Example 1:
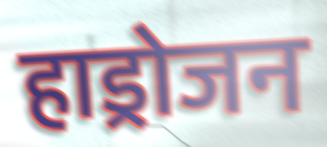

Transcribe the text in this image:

हाड्रोजन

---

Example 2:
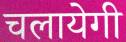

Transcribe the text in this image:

चलायेगी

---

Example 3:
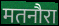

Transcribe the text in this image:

मतनौरा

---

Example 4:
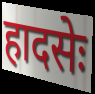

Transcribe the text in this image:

हादसेः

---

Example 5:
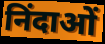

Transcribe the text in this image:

निंदाओं